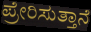
ಪ್ರೇರಿಸುತ್ತಾನೆ